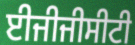
ਈਜੀਜੀਸੀਟੀ